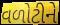
વળોટીને